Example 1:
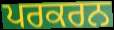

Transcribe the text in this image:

ਪਰਕਰਨ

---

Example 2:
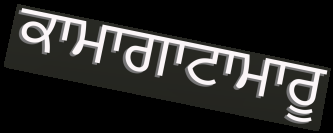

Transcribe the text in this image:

ਕਾਮਾਗਾਟਾਮਾਰੂ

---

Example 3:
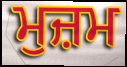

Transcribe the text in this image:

ਮੁਜ਼ਮ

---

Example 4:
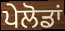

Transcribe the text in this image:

ਪੇਲੋਡਾਂ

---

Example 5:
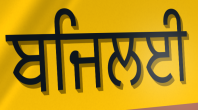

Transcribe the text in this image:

ਬਜਿਲਈ